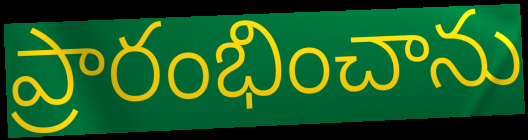
ప్రారంభించాను